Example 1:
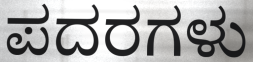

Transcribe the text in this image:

ಪದರಗಳು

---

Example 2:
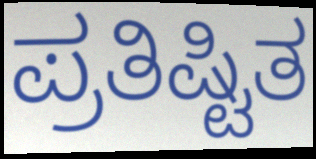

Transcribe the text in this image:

ಪ್ರತಿಷ್ಟಿತ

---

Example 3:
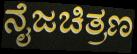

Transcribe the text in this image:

ನೈಜಚಿತ್ರಣ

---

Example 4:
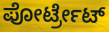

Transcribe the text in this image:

ಪೋರ್ಟ್ರೇಟ್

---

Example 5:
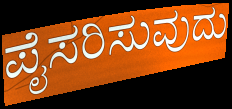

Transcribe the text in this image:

ಪೈಸರಿಸುವುದು